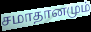
சமாதானமும்